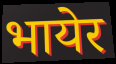
भायेर